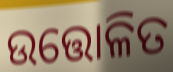
ଉତ୍ତୋଳିତ